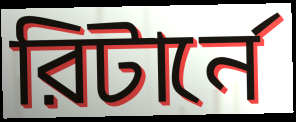
রিটার্নে